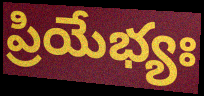
ప్రియేభ్యః